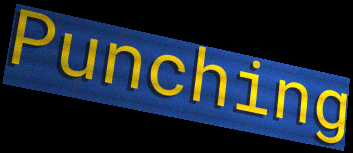
Punching